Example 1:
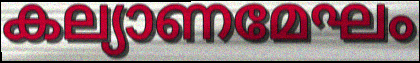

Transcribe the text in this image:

കല്യാണമേഘം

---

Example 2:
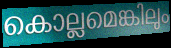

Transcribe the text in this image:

കൊല്ലമെങ്കിലും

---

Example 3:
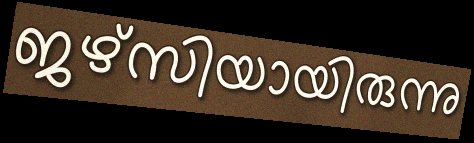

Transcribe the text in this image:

ജഴ്സിയായിരുന്നു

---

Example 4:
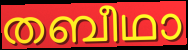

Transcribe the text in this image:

തബീഥാ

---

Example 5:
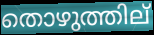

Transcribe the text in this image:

തൊഴുത്തില്